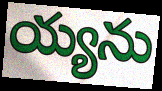
య్యను